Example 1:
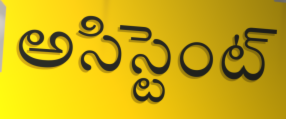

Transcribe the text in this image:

అసిస్టెంట్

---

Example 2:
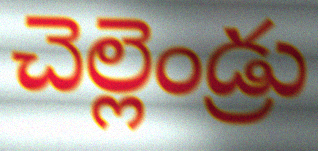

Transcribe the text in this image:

చెల్లెండ్రు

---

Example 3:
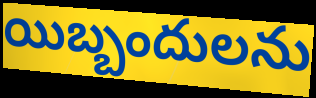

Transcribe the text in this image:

యిబ్బందులను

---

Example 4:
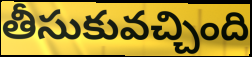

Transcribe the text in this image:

తీసుకువచ్చింది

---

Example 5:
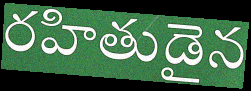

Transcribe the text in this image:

రహితుడైన